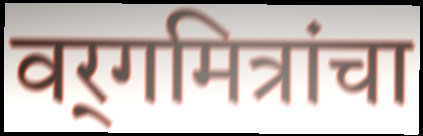
वर्गमित्रांचा